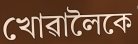
খোৱালৈকে